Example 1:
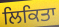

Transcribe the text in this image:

ਲਿਕਿਤਾ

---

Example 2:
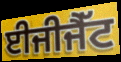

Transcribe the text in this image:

ਈਜੀਜੈੱਟ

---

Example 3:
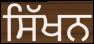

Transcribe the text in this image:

ਸਿੱਖਨ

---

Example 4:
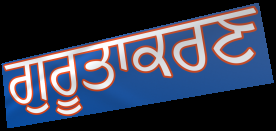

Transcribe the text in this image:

ਗੁਰੂਤਾਕਰਣ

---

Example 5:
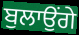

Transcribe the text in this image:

ਬੁਲਾਉਂਗੇ